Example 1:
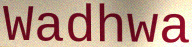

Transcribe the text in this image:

Wadhwa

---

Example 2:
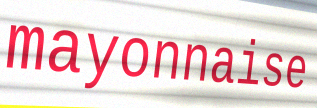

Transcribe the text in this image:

mayonnaise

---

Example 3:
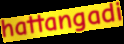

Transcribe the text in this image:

hattangadi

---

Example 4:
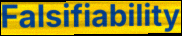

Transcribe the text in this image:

Falsifiability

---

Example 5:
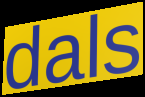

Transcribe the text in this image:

dals